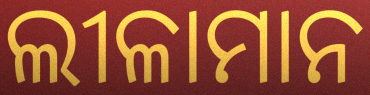
ଲୀଳାମାନ